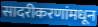
सादरीकरणांमधून